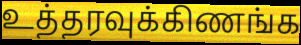
உத்தரவுக்கிணங்க